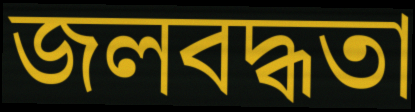
জলবদ্ধতা